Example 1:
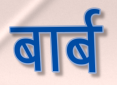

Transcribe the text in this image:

बार्ब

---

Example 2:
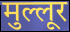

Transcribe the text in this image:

मुल्लूर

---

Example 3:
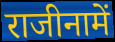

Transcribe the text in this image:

राजीनामें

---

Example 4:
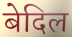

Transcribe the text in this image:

बेदिल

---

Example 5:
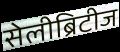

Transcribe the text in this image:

सेलीब्रिटीज